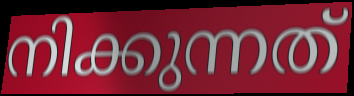
നിക്കുന്നത്